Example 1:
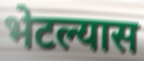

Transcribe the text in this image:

भेटल्यास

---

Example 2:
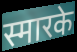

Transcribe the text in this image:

स्मारके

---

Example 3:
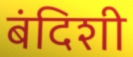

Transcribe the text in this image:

बंदिशी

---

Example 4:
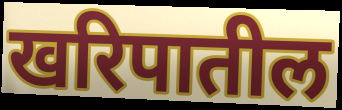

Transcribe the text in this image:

खरिपातील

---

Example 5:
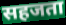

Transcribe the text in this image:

सहजता